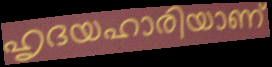
ഹൃദയഹാരിയാണ്